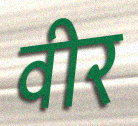
वीर